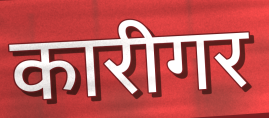
कारीगर